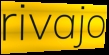
rivajo